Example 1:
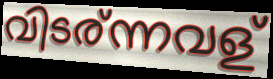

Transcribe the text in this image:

വിടര്ന്നവള്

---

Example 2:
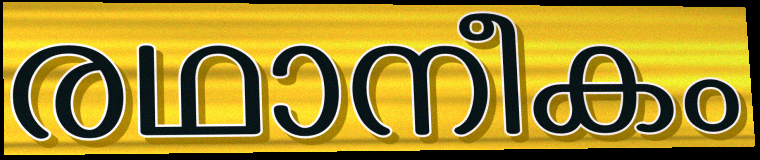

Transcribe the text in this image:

രഥാനീകം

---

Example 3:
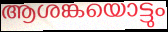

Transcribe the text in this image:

ആശങ്കയൊട്ടും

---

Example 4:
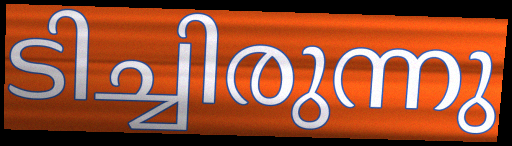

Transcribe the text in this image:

ടിച്ചിരുന്നു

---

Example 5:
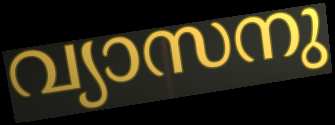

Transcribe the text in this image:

വ്യാസനു